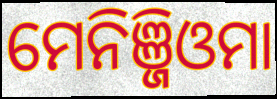
ମେନିଞ୍ଜିଓମା